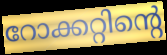
റോക്കറ്റിന്റെ